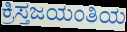
ಕ್ರಿಸ್ತಜಯಂತಿಯ